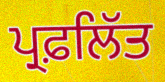
ਪ੍ਰਫ਼ਲਿੱਤ